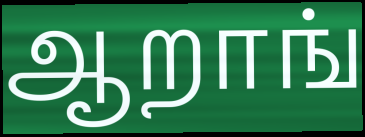
ஆறாங்